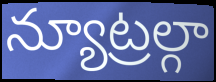
న్యూట్రల్గా